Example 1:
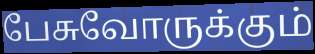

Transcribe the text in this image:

பேசுவோருக்கும்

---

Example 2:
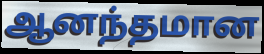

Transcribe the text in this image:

ஆனந்தமான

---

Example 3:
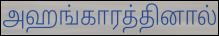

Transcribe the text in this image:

அஹங்காரத்தினால்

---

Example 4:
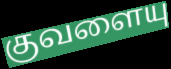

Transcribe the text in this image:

குவளையு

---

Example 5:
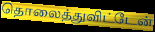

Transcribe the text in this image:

தொலைத்துவிட்டேன்